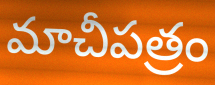
మాచీపత్రం